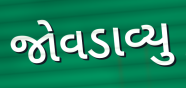
જોવડાવ્યુ